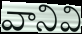
వానివి